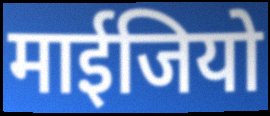
माईजियो